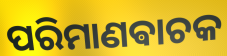
ପରିମାଣଵାଚକ